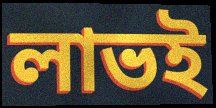
লাভই